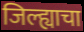
जिल्ह्याचा